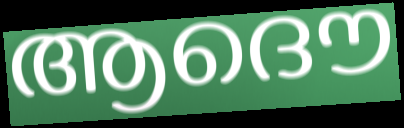
ആദൌ